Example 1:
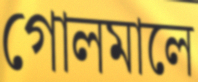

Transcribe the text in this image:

গোলমালে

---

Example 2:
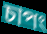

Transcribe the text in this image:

চাপং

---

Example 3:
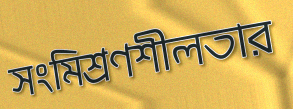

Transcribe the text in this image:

সংমিশ্রণশীলতার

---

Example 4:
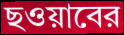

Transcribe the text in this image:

ছওয়াবের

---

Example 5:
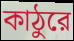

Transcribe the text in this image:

কাঠুরে